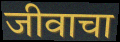
जीवाचा